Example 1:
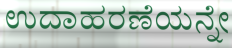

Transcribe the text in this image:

ಉದಾಹರಣೆಯನ್ನೇ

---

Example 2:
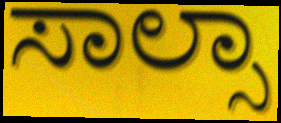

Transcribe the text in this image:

ಸಾಲ್ಸಾ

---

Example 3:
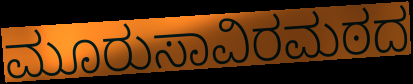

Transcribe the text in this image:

ಮೂರುಸಾವಿರಮಠದ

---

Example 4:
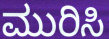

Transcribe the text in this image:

ಮುರಿಸಿ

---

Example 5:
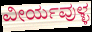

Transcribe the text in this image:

ವೀರ್ಯವುಳ್ಳ